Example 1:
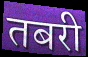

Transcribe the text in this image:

तबरी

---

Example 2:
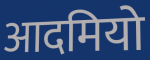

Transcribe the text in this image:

आदमियो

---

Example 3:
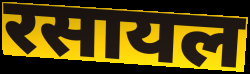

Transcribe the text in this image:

रसायल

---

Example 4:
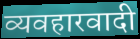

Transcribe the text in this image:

व्यवहारवादी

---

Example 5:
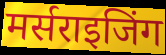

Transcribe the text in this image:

मर्सराइजिंग